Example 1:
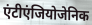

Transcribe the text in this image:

एंटीएंजियोजेनिक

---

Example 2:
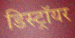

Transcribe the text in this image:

डिस्‍ट्रॉयर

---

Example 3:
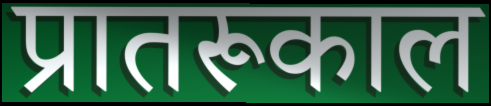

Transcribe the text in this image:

प्रातरूकाल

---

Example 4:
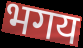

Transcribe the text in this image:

भगय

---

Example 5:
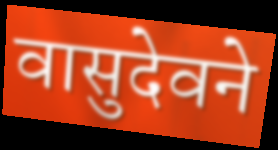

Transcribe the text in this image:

वासुदेवने